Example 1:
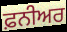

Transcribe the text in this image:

ਫ਼ਨੀਅਰ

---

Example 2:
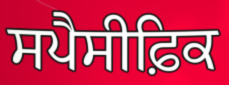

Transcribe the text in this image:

ਸਪੈਸੀਫ਼ਿਕ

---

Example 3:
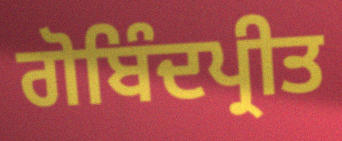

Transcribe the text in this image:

ਗੋਬਿੰਦਪ੍ਰੀਤ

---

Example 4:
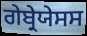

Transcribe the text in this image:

ਗੇਬ੍ਰੇਯੇਸਸ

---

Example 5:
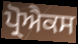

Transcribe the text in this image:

ਪ੍ਰੋਐਕਸ